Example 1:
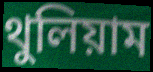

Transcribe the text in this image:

থুলিয়াম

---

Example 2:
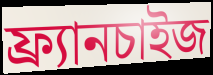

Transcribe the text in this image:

ফ্র্যানচাইজ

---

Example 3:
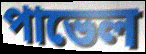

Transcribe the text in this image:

পাভেল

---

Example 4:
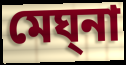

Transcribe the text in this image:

মেঘ্‌না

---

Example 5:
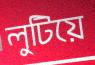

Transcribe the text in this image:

লুটিয়ে